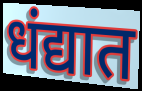
धंद्यात